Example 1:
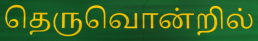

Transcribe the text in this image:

தெருவொன்றில்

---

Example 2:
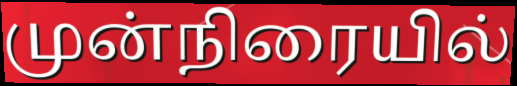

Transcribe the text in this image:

முன்நிரையில்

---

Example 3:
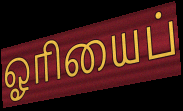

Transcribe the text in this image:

ஓரியைப்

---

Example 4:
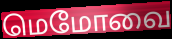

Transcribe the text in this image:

மெமோவை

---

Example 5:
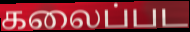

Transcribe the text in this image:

கலைப்பட